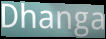
Dhanga